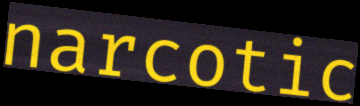
narcotic